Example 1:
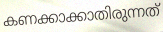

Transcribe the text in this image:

കണക്കാക്കാതിരുന്നത്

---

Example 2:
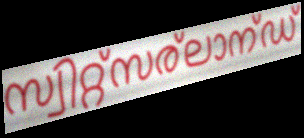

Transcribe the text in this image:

സ്വിറ്റ്സര്ലാന്ഡ്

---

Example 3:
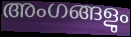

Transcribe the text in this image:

അംഗങ്ങളും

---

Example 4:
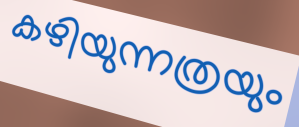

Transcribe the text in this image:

കഴിയുന്നത്രയും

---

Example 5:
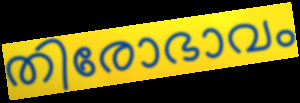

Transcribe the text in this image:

തിരോഭാവം